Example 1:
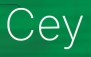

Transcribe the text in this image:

Cey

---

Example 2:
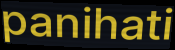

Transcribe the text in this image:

panihati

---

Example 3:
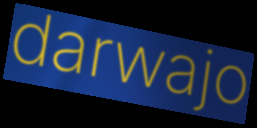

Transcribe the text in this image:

darwajo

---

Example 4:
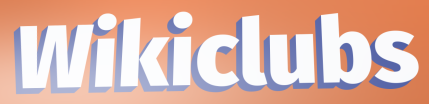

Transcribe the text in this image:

Wikiclubs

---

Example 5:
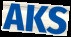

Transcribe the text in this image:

AKS